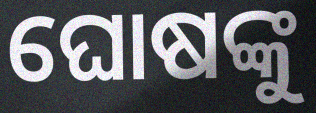
ଘୋଷଙ୍କୁ